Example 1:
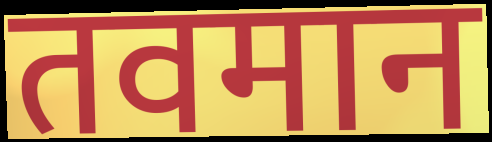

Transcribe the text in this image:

तवमान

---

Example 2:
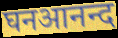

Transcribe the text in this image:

घनआनन्द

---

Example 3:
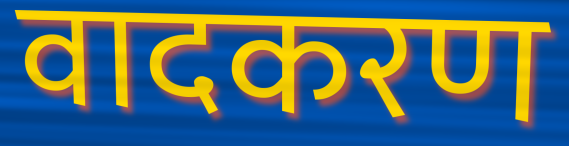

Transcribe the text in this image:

वादकरण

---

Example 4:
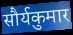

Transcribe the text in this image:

सौर्यकुमार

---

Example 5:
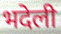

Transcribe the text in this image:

भदेली